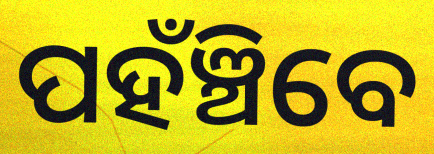
ପହଁଞ୍ଚିବେ